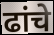
ढांचे